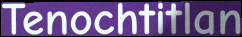
Tenochtitlan